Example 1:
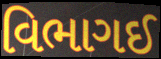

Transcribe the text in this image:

વિભાગઈ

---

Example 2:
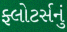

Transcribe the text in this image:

ફ્લોટર્સનું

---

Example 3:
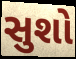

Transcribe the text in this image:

સુશો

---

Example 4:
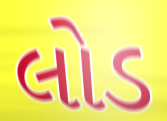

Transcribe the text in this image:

લોડ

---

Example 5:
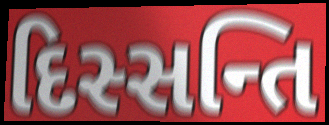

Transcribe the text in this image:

દિસ્સન્તિ